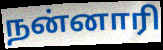
நன்னாரி